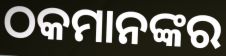
ଠକମାନଙ୍କର